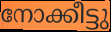
നോക്കീട്ടു